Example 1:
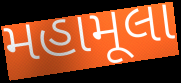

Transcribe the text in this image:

મહામૂલા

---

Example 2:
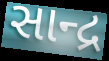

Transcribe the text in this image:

સાન્દ્ર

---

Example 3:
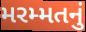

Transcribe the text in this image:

મરમ્મતનું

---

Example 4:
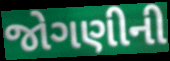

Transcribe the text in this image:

જોગણીની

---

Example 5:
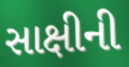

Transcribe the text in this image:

સાક્ષીની